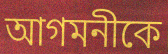
আগমনীকে